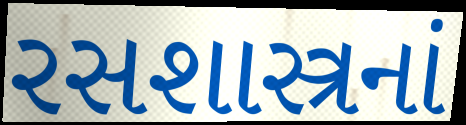
રસશાસ્ત્રનાં